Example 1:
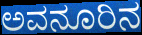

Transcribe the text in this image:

ಅವನೂರಿನ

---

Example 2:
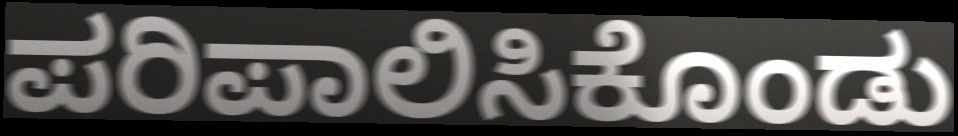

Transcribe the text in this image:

ಪರಿಪಾಲಿಸಿಕೊಂಡು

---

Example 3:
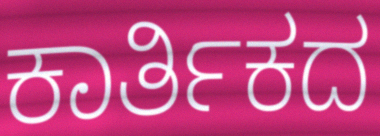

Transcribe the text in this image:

ಕಾರ್ತಿಕದ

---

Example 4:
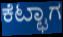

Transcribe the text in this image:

ಕೆಟ್ಟಾಗ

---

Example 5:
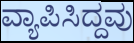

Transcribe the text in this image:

ವ್ಯಾಪಿಸಿದ್ದವು